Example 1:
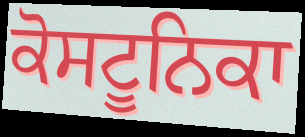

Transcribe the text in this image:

ਕੋਸਟੂਨਿਕਾ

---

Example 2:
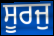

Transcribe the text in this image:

ਸੂਰਜੁ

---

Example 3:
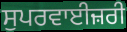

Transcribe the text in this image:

ਸੁਪਰਵਾਈਜ਼ਰੀ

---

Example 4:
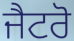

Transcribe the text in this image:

ਜੈਟਰੋ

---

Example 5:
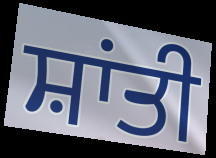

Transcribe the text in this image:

ਸ਼ਾਂਤੀ